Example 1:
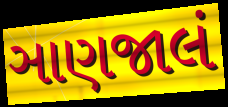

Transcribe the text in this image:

ઞાણજાલં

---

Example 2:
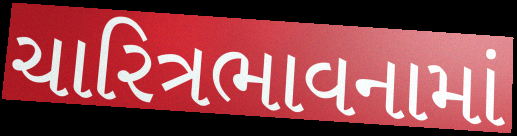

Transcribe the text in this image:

ચારિત્રભાવનામાં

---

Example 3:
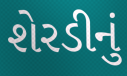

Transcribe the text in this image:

શેરડીનું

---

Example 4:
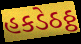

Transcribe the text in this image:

હકડેઠઠ્ઠ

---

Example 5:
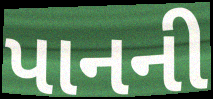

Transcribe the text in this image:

પાનની